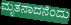
ಮೃತನಾದನೆಂದು